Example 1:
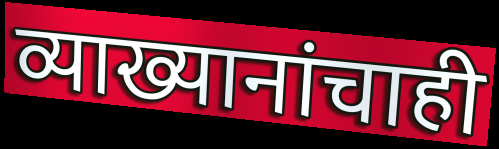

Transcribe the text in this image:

व्याख्यानांचाही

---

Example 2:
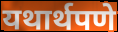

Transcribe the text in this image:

यथार्थपणे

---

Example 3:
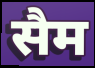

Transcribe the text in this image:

सैम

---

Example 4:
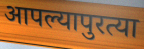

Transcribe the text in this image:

आपल्यापुरत्या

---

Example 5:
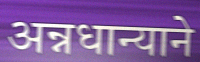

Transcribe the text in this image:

अन्नधान्याने